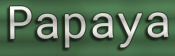
Papaya